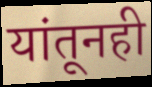
यांतूनही